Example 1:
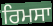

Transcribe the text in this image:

ਰਿਮਸਾ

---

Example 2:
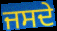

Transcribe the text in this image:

ਜਸਦੇ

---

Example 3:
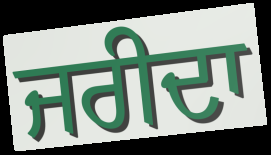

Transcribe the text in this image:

ਜਰੀਦਾ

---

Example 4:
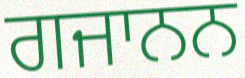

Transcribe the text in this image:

ਗਜਾਨਨ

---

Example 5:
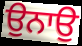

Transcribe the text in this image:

ਉਨਾਉ